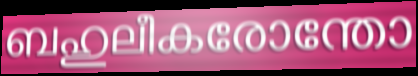
ബഹുലീകരോന്തോ